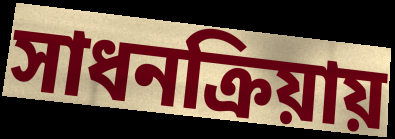
সাধনক্রিয়ায়